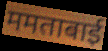
ममताबाई